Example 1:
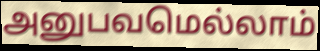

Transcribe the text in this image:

அனுபவமெல்லாம்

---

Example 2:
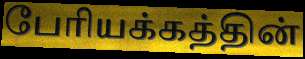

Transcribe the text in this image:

பேரியக்கத்தின்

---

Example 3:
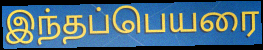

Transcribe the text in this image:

இந்தப்பெயரை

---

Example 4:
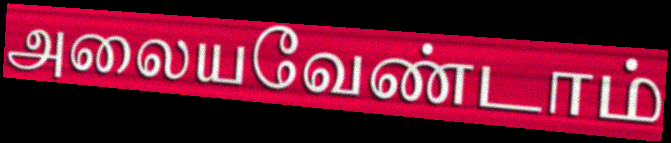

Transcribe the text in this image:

அலையவேண்டாம்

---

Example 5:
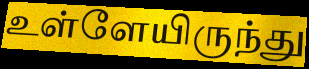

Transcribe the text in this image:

உள்ளேயிருந்து